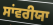
ਸਾਂਵਰੀਯਾ